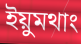
ইয়ুমথাং